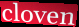
cloven